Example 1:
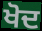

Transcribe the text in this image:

ਖੋਦ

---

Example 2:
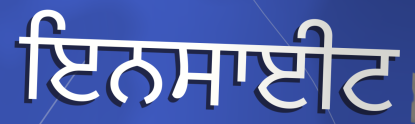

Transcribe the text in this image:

ਇਨਸਾਈਟ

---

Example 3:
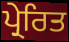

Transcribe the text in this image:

ਪ੍ਰ੍ਰੇਰਿਤ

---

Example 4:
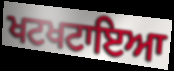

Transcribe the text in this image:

ਖਟਖਟਾਇਆ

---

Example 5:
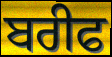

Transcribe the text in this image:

ਬਰੀਫ